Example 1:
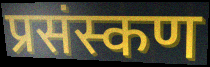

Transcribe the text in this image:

प्रसंस्कण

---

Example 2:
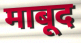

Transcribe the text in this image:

माबूद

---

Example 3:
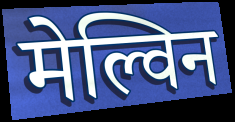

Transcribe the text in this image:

मेल्विन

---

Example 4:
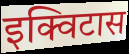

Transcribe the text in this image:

इक्विटास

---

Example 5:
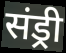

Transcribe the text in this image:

संड्री